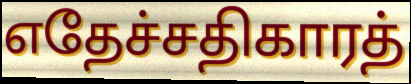
எதேச்சதிகாரத்